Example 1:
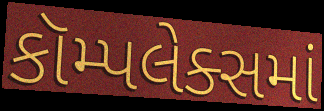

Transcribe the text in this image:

કૉમ્પલેક્સમાં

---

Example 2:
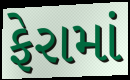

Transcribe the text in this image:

ફેરામાં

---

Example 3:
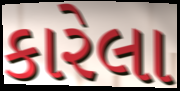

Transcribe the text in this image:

કારેલા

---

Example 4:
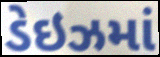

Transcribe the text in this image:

ડેઇઝમાં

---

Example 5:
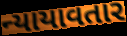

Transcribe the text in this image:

ન્યાયાવતાર